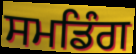
ਸਮਡਿੰਗ